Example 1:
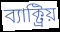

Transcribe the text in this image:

ব্যাক্ট্রিয়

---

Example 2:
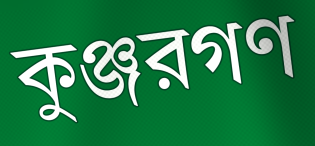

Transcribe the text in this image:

কুঞ্জরগণ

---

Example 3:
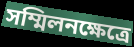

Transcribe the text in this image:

সম্মিলনক্ষেত্রে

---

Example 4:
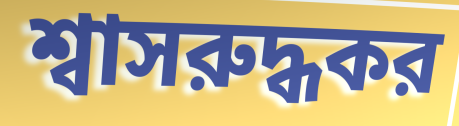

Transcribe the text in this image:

শ্বাসরুদ্ধকর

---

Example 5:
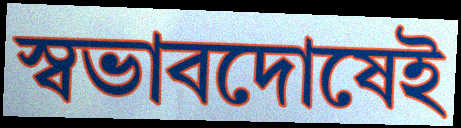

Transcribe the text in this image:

স্বভাবদোষেই